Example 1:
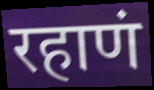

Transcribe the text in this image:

रहाणं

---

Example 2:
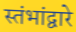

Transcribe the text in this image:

स्तंभांद्वारे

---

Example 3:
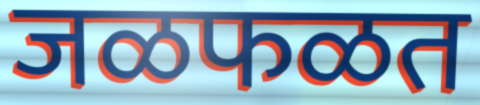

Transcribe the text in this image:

जळफळत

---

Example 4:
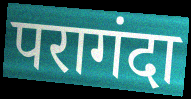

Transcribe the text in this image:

परागंदा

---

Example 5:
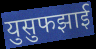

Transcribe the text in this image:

युसुफझाई